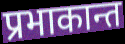
प्रभाकान्त